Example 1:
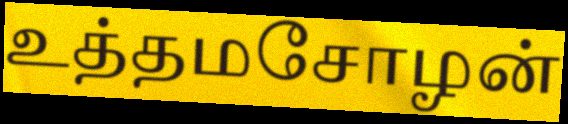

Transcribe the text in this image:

உத்தமசோழன்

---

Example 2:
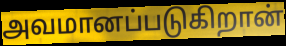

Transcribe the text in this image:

அவமானப்படுகிறான்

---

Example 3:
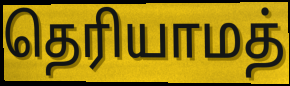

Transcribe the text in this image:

தெரியாமத்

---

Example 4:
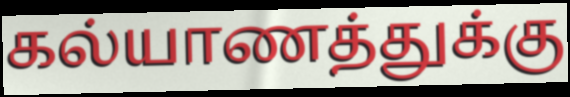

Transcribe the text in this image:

கல்யாணத்துக்கு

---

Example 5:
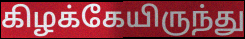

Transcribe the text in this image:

கிழக்கேயிருந்து